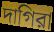
দাগিরা